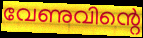
വേണുവിന്റെ